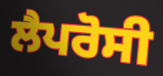
ਲੈਪਰੋਸੀ